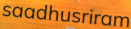
saadhusriram